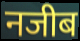
नजीब